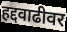
हद्दवाढीवर